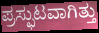
ಪ್ರಸ್ಫುಟವಾಗಿತ್ತು